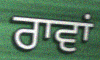
ਰਾਵਾਂ